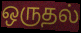
ஒருதல்